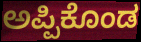
ಅಪ್ಪಿಕೊಂಡ